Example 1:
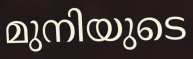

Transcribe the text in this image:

മുനിയുടെ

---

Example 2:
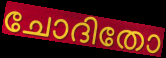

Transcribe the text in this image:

ചോദിതോ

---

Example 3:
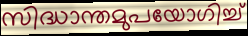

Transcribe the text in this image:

സിദ്ധാന്തമുപയോഗിച്ച്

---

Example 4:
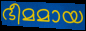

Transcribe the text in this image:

ഭീമമായ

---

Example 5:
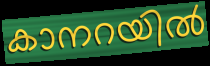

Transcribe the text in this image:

കാനറയിൽ